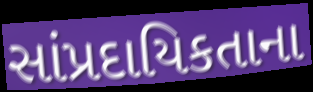
સાંપ્રદાયિકતાના